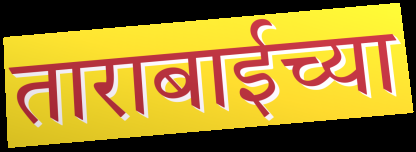
ताराबाईच्या